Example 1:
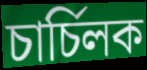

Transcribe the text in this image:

চাৰ্চিলক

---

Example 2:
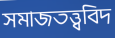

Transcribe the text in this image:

সমাজতত্ত্ববিদ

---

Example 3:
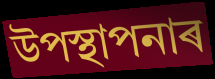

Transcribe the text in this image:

উপস্থাপনাৰ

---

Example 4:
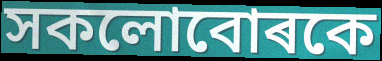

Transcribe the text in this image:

সকলোবোৰকে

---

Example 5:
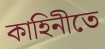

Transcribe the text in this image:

কাহিনীতে